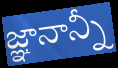
జ్ఞానాన్నీ